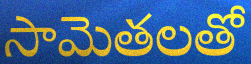
సామెతలతో